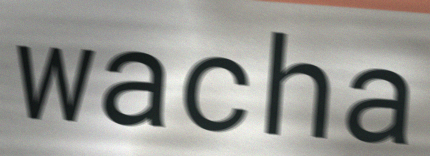
wacha